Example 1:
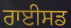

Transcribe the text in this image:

ਰਾਈਸਡ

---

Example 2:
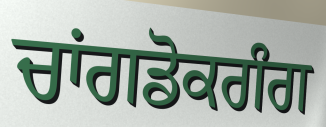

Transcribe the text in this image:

ਚਾਂਗਡੋਕਗੰਗ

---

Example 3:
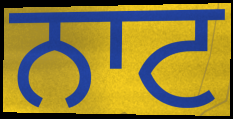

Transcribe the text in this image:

ਨਾਟ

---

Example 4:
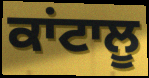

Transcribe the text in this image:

ਕਾਂਟਾਲੂ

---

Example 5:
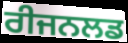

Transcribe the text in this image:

ਰੀਜਨਲਡ